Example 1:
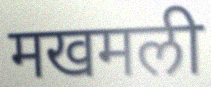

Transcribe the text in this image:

मखमली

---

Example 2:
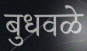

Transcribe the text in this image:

बुधवळे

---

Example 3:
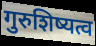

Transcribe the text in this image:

गुरुशिष्यत्व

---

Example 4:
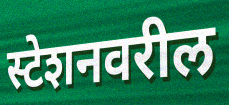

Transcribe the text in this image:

स्टेशनवरील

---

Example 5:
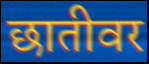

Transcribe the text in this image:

छातीवर